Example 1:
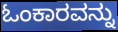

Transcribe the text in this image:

ಓಂಕಾರವನ್ನು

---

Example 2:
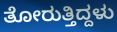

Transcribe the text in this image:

ತೋರುತ್ತಿದ್ದಳು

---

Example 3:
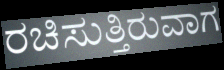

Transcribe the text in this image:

ರಚಿಸುತ್ತಿರುವಾಗ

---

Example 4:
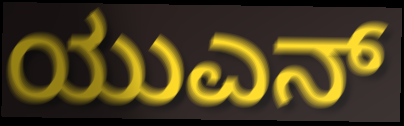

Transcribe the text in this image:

ಯುಎನ್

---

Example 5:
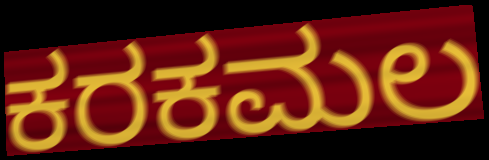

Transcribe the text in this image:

ಕರಕಮಲ